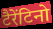
टैरेंटिनो